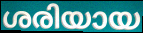
ശരിയായ